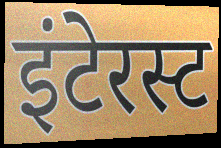
इंटेरस्ट